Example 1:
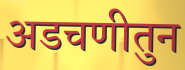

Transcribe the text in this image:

अडचणीतुन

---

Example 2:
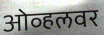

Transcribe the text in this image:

ओव्हलवर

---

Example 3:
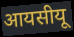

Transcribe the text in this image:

आयसीयू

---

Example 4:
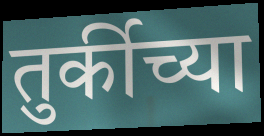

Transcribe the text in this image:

तुर्कीच्या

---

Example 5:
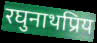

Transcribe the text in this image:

रघुनाथप्रिय